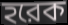
হরেক